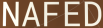
NAFED